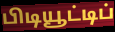
பிடியூட்டிப்